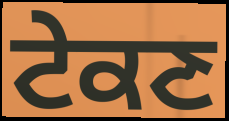
ਟੇਕਣ